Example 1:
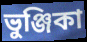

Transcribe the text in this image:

ভুঞ্জিকা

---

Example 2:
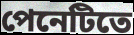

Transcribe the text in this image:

পেনেটিতে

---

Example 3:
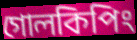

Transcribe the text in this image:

গোলকিপিং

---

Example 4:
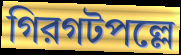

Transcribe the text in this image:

গিরগটপল্লে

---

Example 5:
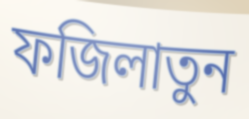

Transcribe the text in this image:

ফজিলাতুন